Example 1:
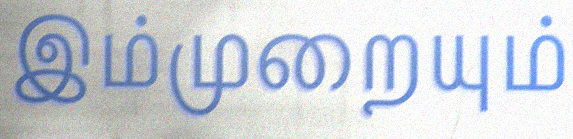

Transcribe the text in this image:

இம்முறையும்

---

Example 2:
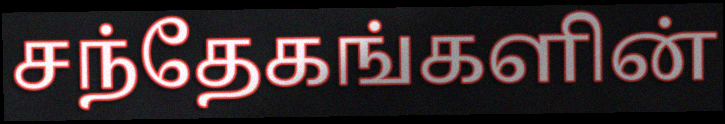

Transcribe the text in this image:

சந்தேகங்களின்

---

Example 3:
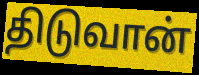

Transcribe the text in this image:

திடுவான்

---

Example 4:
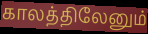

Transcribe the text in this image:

காலத்திலேனும்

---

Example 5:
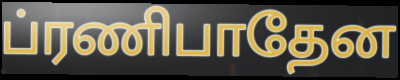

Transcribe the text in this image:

ப்ரணிபாதேன